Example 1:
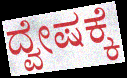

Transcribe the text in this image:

ದ್ವೇಷಕ್ಕೆ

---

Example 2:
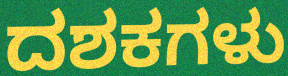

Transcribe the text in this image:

ದಶಕಗಳು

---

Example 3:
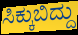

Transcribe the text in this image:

ಸಿಕ್ಕುಬಿದ್ದು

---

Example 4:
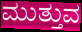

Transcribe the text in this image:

ಮುತ್ತುವ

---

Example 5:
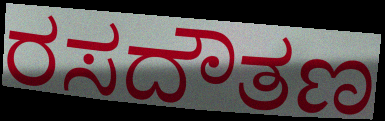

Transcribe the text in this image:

ರಸದೌತಣ